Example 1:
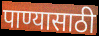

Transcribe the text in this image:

पाण्यासाठी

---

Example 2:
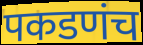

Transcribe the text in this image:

पकडणंच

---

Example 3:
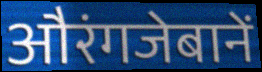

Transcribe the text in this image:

औरंगजेबानें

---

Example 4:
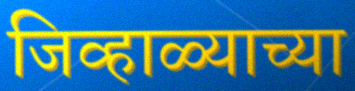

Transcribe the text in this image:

जिव्हाळ्याच्या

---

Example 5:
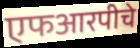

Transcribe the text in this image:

एफआरपीचे